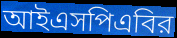
আইএসপিএবির